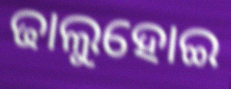
ଢାଲୁହୋଇ